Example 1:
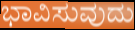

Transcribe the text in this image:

ಭಾವಿಸುವುದು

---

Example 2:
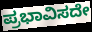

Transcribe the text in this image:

ಪ್ರಭಾವಿಸದೇ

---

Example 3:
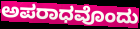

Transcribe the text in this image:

ಅಪರಾಧವೊಂದು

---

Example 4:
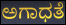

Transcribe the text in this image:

ಅಗಾಧತೆ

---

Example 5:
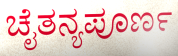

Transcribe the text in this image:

ಚೈತನ್ಯಪೂರ್ಣ